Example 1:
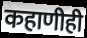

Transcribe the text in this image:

कहाणीही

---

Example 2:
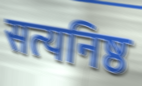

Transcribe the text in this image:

सत्यनिष्ठ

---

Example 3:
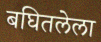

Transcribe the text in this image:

बघितलेला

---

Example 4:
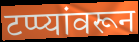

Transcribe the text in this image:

टप्प्यांवरून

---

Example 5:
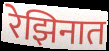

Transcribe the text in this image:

रेझिनात